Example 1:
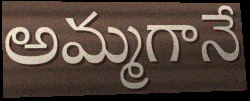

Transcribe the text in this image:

అమ్మగానే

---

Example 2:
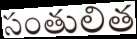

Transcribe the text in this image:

సంతులిత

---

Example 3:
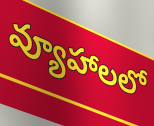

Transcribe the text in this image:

వ్యూహాలలో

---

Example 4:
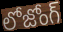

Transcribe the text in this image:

లోజోంగ్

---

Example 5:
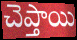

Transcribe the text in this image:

చెప్తాయి